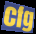
cfg